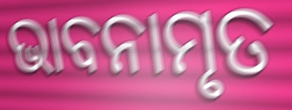
ଭାବନାମୃତ